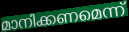
മാനിക്കണമെന്ന്